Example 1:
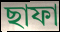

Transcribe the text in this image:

ছাফা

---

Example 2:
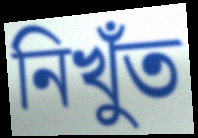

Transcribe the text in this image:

নিখুঁত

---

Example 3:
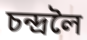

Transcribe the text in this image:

চন্দ্ৰলৈ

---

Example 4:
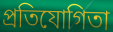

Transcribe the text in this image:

প্ৰতিযোগিতা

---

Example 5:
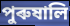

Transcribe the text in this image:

পুৰুষালি